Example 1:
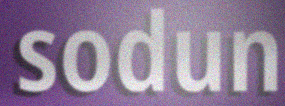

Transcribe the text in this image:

sodun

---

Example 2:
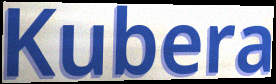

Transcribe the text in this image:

Kubera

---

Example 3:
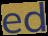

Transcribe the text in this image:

ed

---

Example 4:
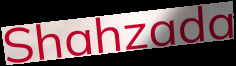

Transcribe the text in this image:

Shahzada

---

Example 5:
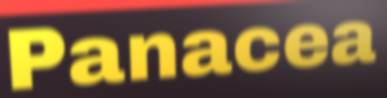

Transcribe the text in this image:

Panacea